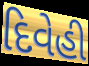
દિવેહી